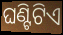
ଘଣ୍ଟିଟିଏ